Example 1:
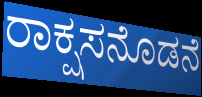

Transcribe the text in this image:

ರಾಕ್ಷಸನೊಡನೆ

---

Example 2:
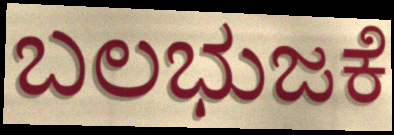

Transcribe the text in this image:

ಬಲಭುಜಕೆ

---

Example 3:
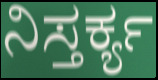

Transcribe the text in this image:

ನಿಸ್ತರ್ಕ್ಯ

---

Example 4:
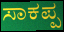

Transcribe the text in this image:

ಸಾಕಪ್ಪ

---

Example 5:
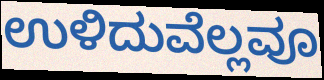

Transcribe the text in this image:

ಉಳಿದುವೆಲ್ಲವೂ